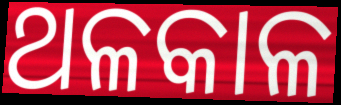
ଥଳକାଳ